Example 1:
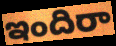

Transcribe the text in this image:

ఇందిరా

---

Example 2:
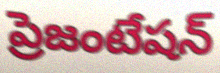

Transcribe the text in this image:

ప్రెజంటేషన్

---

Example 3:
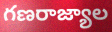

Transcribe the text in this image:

గణరాజ్యాల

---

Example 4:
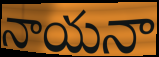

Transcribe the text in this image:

నాయనా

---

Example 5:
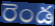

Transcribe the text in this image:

రెండ